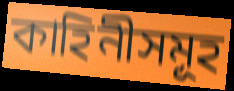
কাহিনীসমূহ